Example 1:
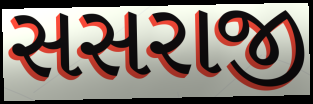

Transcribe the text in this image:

સસરાજી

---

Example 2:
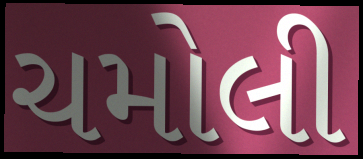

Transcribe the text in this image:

ચમોલી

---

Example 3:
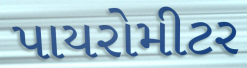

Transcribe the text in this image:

પાયરોમીટર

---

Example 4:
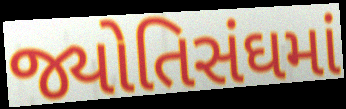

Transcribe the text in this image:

જ્યોતિસંઘમાં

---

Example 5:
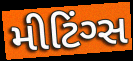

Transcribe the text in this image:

મીટિંગ્સ